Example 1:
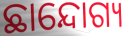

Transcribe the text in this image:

ଛାନ୍ଦୋଗ୍ୟ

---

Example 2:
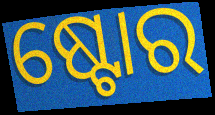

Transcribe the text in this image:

ଷ୍ଟୋର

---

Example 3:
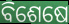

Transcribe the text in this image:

ବିଶେଷେ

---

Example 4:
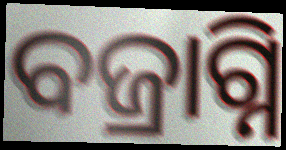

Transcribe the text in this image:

ବଜ୍ରାଗ୍ନି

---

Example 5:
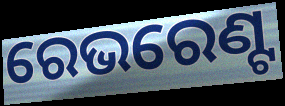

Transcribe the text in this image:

ରେଭରେଣ୍ଟ